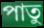
পাতু